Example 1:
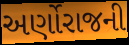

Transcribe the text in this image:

અર્ણોરાજની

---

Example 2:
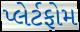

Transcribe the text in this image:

પ્લેર્ટફોમ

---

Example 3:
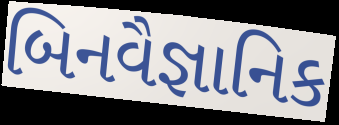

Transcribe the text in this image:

બિનવૈજ્ઞાનિક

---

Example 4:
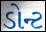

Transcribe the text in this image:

ડોન્ટ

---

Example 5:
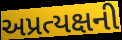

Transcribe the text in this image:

અપ્રત્યક્ષની